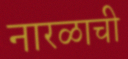
नारळाची